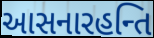
આસનારહન્તિ